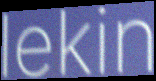
lekin